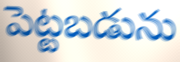
పెట్టబడును